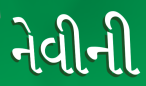
નેવીની